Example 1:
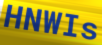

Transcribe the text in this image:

HNWIs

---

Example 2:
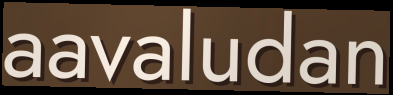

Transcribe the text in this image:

aavaludan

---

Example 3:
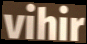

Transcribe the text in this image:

vihir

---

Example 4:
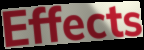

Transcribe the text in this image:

Effects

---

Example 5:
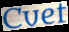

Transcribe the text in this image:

Cuet